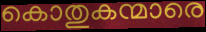
കൊതുകന്മാരെ